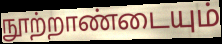
நூற்றாண்டையும்